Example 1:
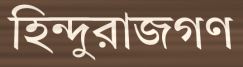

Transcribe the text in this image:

হিন্দুরাজগণ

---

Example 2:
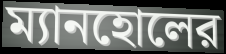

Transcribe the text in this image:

ম্যানহোলের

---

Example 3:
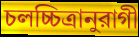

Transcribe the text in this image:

চলচ্চিত্রানুরাগী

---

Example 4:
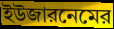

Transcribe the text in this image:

ইউজারনেমের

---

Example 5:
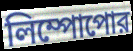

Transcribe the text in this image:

লিম্পোপোর